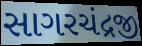
સાગરચંદ્રજી